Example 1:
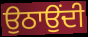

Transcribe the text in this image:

ਉਠਾਉਂਦੀ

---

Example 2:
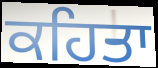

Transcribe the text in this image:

ਕਹਿਤਾ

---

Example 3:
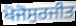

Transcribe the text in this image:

ਖੋਜੋਸੁਰਜੀਤ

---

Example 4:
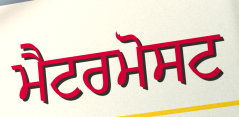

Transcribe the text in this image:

ਮੈਟਰਮੋਸਟ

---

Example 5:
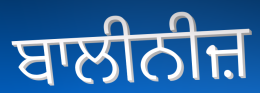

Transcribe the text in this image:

ਬਾਲੀਨੀਜ਼